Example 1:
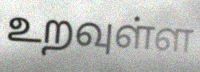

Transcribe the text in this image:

உறவுள்ள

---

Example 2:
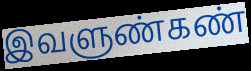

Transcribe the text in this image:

இவளுண்கண்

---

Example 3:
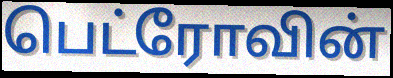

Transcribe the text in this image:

பெட்ரோவின்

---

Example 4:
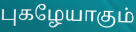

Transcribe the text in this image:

புகழேயாகும்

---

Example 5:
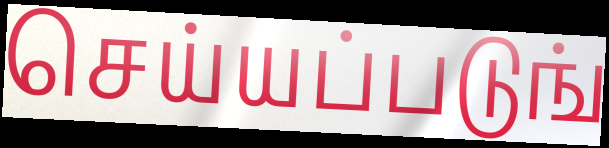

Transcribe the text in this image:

செய்யப்படுங்